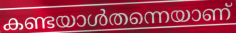
കണ്ടയാൾതന്നെയാണ്